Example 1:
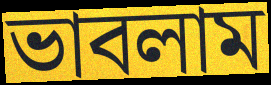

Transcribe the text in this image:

ভাবলাম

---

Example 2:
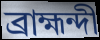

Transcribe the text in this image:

ব্রাহ্মন্দী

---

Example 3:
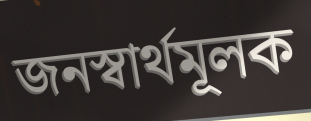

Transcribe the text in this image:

জনস্বার্থমূলক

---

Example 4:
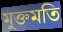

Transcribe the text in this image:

মুক্তমতি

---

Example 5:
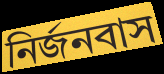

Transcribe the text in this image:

নির্জনবাস